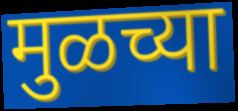
मुळच्या